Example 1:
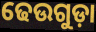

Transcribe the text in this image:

ଢେଉଗୁଡ଼ା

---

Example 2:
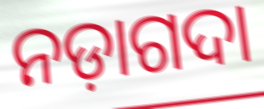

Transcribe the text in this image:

ନଡ଼ାଗଦା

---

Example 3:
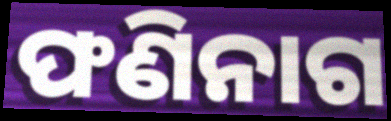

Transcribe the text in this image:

ଫଣିନାଗ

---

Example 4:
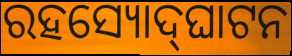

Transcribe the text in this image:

ରହସ୍ୟୋଦ୍‍ଘାଟନ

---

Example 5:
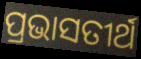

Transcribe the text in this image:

ପ୍ରଭାସତୀର୍ଥ